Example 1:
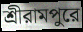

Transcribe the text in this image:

শ্রীরামপুরে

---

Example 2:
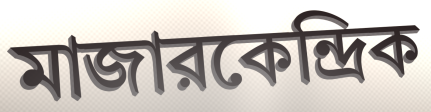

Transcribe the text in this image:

মাজারকেন্দ্রিক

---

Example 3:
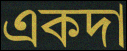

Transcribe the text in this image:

একদা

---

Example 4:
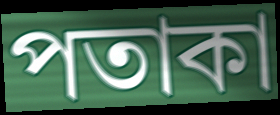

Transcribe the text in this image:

পতাকা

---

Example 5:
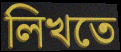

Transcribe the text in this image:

লিখতে